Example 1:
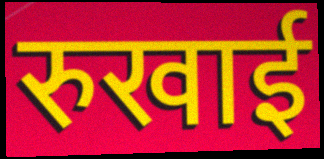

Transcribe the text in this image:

रुखाई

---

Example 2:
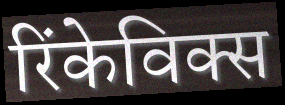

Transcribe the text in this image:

रिंकेविक्स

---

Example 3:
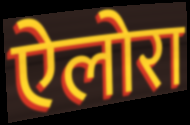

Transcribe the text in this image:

ऐलोरा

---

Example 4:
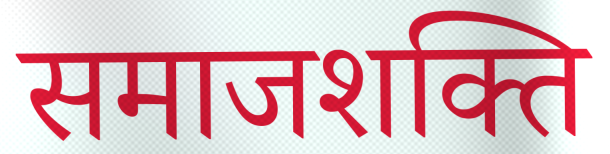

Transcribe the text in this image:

समाजशक्ति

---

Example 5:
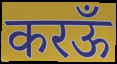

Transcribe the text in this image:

करऊँ